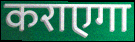
कराएगा